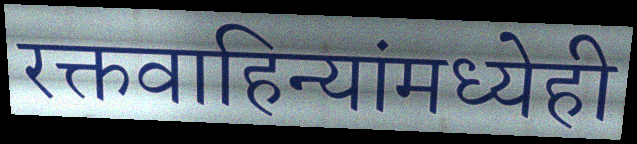
रक्तवाहिन्यांमध्येही